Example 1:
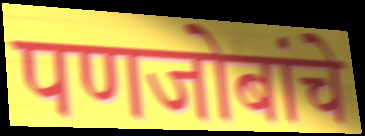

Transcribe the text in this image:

पणजोबांचे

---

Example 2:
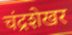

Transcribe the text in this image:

चंद्रशेखर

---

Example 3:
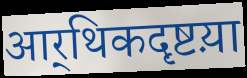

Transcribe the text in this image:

आर्थिकदृष्टय़ा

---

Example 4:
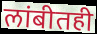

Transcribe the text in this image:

लांबीतही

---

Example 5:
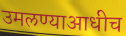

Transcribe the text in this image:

उमलण्याआधीच